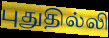
புதுதில்லி